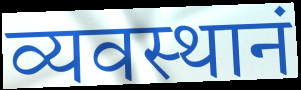
व्यवस्थानं